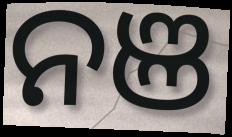
ନଞ